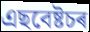
এছবেষ্টচৰ